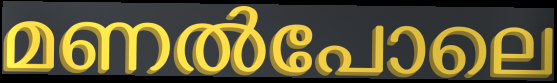
മണൽപോലെ